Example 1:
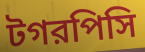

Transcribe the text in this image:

টগরপিসি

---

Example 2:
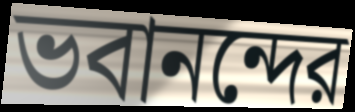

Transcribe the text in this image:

ভবানন্দের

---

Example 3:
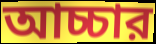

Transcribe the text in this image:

আচ্চার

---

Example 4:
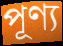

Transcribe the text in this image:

পূণ্য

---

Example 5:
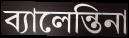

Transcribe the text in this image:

ব্যালেন্তিনা